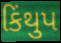
કિંથુપ